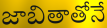
జాబితాతోనే